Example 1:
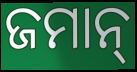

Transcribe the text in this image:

ଜମାନ୍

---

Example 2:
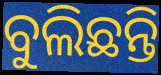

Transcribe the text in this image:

ବୁଲିଛନ୍ତି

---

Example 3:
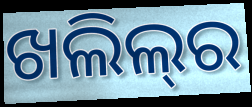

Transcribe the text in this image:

ଖଲିଲ୍‍ର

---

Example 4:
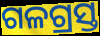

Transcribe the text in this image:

ଗଳଗ୍ରସ୍ତ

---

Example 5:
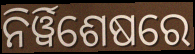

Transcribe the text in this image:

ନିର୍ୱିଶେଷରେ